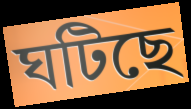
ঘটিছে